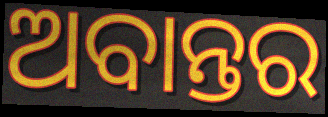
ଅବାନ୍ତର